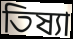
তিষ্যা